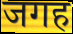
जगह